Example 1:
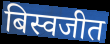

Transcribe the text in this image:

बिस्वजीत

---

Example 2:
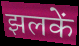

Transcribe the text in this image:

झलकें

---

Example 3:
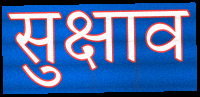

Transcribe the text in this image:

सुक्षाव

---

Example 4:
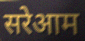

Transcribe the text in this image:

सरेआम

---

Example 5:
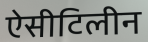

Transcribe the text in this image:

ऐसीटिलीन